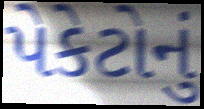
પેકેટોનું